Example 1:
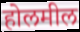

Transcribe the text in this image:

होलमील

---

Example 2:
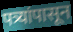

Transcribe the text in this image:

पत्र्यांपासून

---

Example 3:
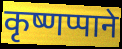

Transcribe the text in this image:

कृष्णप्पाने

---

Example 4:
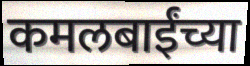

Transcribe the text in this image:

कमलबाईंच्या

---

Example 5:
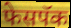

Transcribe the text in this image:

फेसपॅक